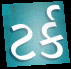
ટર્ક